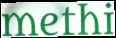
methi